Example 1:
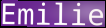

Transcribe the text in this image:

Emilie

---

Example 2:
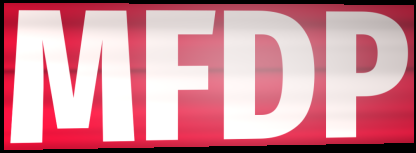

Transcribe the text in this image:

MFDP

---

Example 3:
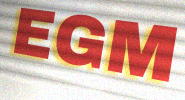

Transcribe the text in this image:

EGM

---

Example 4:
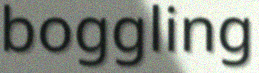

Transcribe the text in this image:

boggling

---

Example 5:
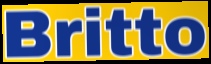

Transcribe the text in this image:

Britto